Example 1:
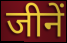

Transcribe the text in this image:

जीनें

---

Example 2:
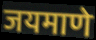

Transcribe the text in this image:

जयमाणे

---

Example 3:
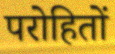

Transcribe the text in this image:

परोहितों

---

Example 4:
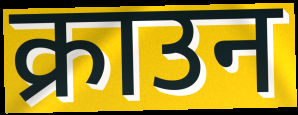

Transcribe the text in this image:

क्राउन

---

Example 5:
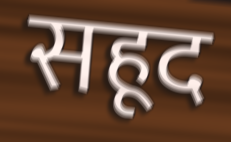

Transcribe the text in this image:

सहूद